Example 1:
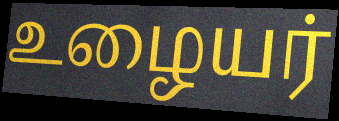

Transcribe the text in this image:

உழையர்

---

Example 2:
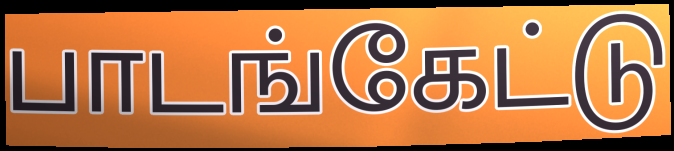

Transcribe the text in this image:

பாடங்கேட்டு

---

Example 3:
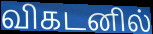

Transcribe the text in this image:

விகடனில்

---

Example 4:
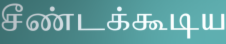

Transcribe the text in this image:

சீண்டக்கூடிய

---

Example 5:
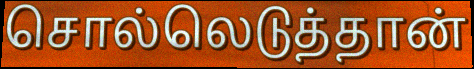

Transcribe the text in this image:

சொல்லெடுத்தான்